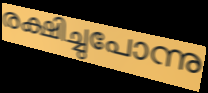
രക്ഷിച്ചുപോന്നു